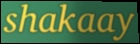
shakaay